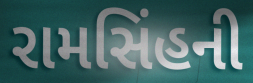
રામસિંહની